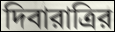
দিবারাত্রির